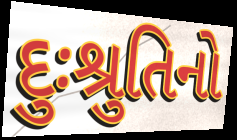
દુઃશ્રુતિનો